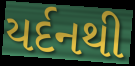
યર્દનથી